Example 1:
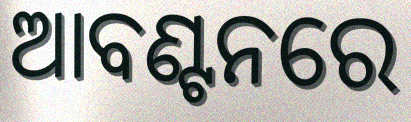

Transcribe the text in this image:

ଆବଣ୍ଟନରେ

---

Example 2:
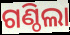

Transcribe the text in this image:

ଗଣ୍ଠିଲା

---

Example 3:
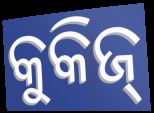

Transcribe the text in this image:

କୁକିଜ୍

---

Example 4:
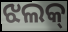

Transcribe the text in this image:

ଝଲକ୍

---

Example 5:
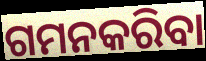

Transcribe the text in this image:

ଗମନକରିବା